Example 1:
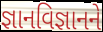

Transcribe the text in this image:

જ્ઞાનવિજ્ઞાનને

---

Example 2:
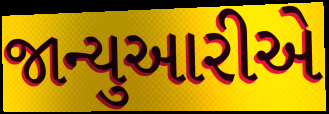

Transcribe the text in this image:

જાન્યુઆરીએ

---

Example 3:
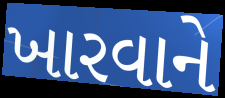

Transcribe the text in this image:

ખારવાને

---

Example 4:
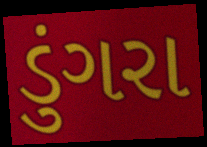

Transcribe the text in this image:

ડુંગરા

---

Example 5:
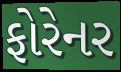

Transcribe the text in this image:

ફોરેનર